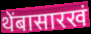
थेंबासारखं